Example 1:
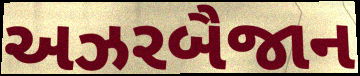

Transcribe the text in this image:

અઝરબૈજાન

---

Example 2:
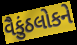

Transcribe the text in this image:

વૈકુંઠલોકને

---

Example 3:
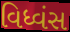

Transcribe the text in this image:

વિધ્વંસ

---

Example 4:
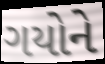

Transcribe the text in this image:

ગયોને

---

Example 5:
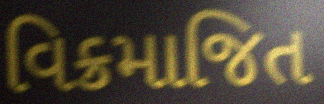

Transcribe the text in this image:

વિક્રમાજિત